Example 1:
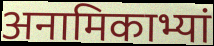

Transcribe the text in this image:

अनामिकाभ्यां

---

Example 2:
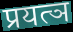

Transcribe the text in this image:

प्रयत्ञ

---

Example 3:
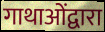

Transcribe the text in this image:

गाथाओंद्वारा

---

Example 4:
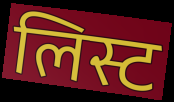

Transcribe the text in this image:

लिस्‍ट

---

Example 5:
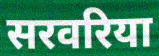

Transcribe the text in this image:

सरवरिया